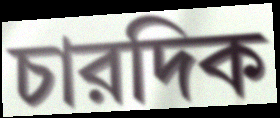
চারদিক